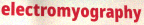
electromyography